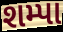
શમ્પા